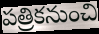
పత్రికనుంచి